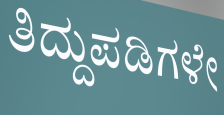
ತಿದ್ದುಪಡಿಗಳೇ